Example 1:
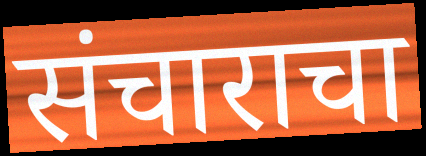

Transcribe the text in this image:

संचाराचा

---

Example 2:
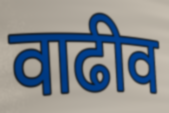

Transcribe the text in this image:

वाढीव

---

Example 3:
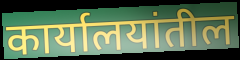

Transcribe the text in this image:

कार्यालयांतील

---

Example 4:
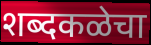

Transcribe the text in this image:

शब्दकळेचा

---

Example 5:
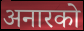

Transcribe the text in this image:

अनारको